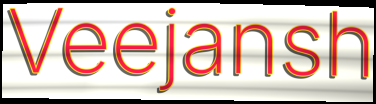
Veejansh